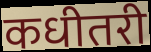
कधीतरी